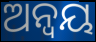
ଅନ୍ଵୟ